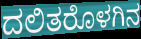
ದಲಿತರೊಳಗಿನ